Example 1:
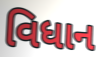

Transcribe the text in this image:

વિધાન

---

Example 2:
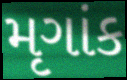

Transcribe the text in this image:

મૃગાંક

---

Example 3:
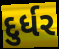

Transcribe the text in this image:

દુર્ધર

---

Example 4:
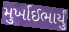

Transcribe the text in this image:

મુર્ખાઈભાર્યું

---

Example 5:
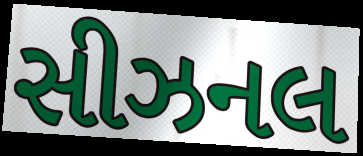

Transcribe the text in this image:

સીઝનલ